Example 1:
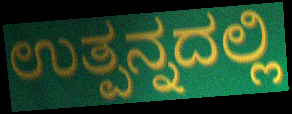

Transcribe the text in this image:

ಉತ್ಪನ್ನದಲ್ಲಿ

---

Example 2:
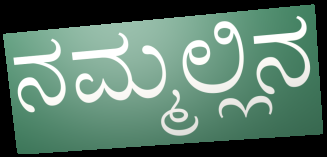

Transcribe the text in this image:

ನಮ್ಮಲ್ಲಿನ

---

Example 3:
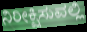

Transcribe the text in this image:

ನಿರೀಕ್ಷಿಸುವಲ್ಲಿ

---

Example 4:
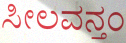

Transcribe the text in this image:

ಸೀಲವನ್ತಂ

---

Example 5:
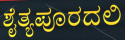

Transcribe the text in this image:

ಶೈತ್ಯಪೂರದಲಿ